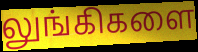
லுங்கிகளை